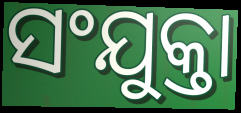
ସଂଯୁକ୍ତା